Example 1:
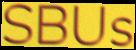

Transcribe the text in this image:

SBUs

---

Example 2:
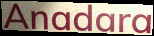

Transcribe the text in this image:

Anadara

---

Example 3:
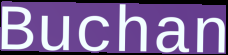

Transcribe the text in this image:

Buchan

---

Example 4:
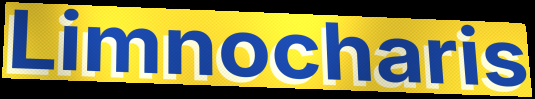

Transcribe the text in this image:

Limnocharis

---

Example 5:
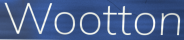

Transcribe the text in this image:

Wootton